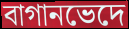
বাগানভেদে